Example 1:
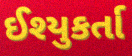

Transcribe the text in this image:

ઈશ્યુકર્તા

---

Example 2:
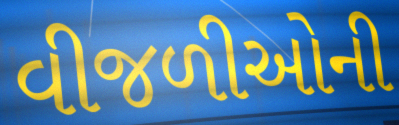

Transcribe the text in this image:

વીજળીઓની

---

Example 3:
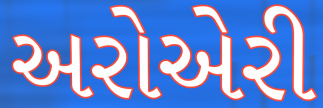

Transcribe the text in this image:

અરોએરી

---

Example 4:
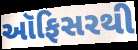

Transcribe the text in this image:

ઑફિસરથી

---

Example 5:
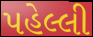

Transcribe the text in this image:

પહેલ્લી